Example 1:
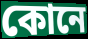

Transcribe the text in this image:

কোনে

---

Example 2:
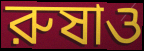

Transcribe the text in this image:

রুষাও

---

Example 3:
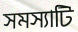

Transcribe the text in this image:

সমস্যাটি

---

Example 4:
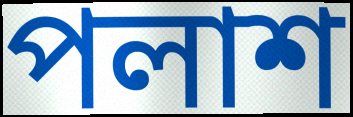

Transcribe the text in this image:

পলাশ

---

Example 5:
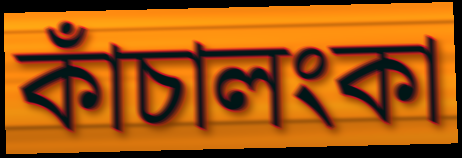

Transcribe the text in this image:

কাঁচালংকা